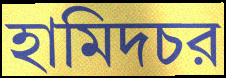
হামিদচর